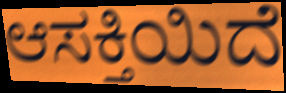
ಆಸಕ್ತಿಯಿದೆ